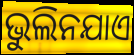
ଭୁଲିନଯାଏ